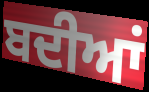
ਬਦੀਆਂ